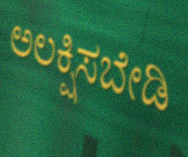
ಅಲಕ್ಷಿಸಬೇಡಿ